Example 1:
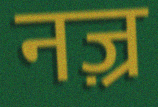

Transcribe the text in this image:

नज़्र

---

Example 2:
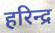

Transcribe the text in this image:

हरिन्द्र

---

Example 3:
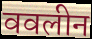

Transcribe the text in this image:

ववलीन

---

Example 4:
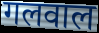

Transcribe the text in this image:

गलवाल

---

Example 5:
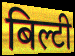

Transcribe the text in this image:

बिल्टी